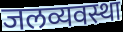
जलव्यवस्था